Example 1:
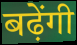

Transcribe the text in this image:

बढ़ेंगी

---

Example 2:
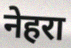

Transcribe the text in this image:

नेहरा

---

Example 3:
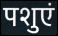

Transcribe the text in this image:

पशुएं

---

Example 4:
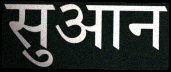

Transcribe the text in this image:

सुआन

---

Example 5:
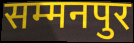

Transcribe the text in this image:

सम्मनपुर